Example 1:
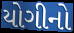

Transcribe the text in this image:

યોગીનો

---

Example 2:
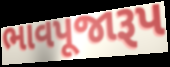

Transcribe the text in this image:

ભાવપૂજારૂપ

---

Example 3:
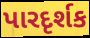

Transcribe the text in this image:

પારદૃર્શક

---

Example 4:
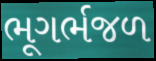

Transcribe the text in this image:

ભૂગર્ભજળ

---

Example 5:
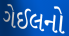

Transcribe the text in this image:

ગેઈલનો